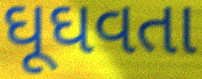
ઘૂઘવતા